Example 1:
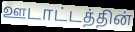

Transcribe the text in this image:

ஊடாட்டத்தின்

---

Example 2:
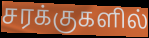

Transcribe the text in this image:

சரக்குகளில்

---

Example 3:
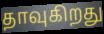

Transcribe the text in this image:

தாவுகிறது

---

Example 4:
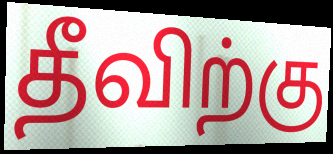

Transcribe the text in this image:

தீவிற்கு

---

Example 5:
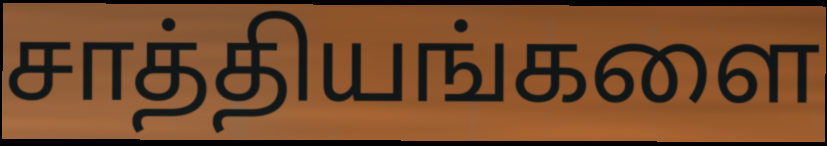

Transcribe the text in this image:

சாத்தியங்களை